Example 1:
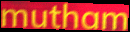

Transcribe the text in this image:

mutham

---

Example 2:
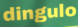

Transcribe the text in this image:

dingulo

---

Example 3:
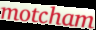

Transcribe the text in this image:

motcham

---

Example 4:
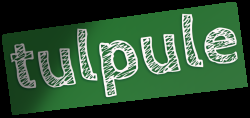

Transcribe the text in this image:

tulpule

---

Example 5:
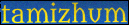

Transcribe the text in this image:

tamizhum